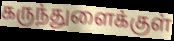
கருந்துளைக்குள்